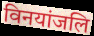
विनयांजलि